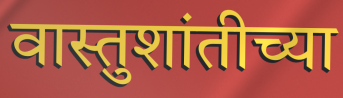
वास्तुशांतीच्या